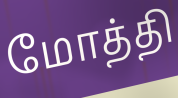
மோத்தி